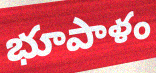
భూపాళం